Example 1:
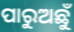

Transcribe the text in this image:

ପାରୁଅଛୁଁ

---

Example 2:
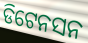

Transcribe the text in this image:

ଡିଟେନସନ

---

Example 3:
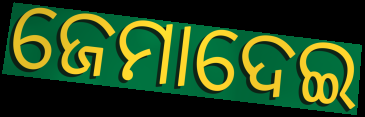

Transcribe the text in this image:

ଜେମାଦେଇ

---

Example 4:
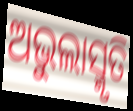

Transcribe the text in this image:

ଅଭୁଲାସ୍ମୃତି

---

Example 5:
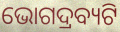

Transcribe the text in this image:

ଭୋଗଦ୍ରବ୍ୟଟି